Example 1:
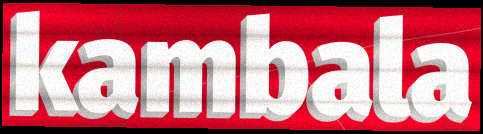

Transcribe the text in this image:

kambala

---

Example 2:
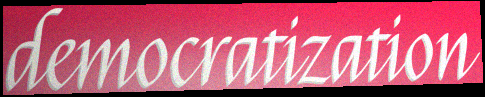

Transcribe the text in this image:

democratization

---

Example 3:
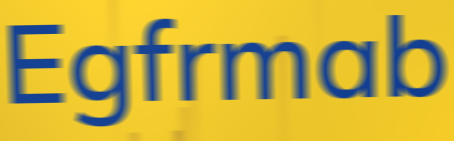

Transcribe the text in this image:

Egfrmab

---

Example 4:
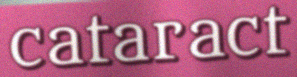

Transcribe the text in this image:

cataract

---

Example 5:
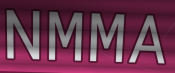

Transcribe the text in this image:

NMMA